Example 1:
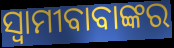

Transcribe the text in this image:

ସ୍ଵାମୀବାବାଙ୍କର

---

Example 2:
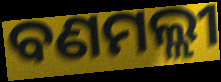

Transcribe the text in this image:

ବଣମଲ୍ଲୀ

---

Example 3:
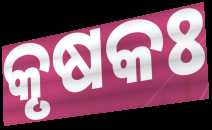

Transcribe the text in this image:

କୃଷକଃ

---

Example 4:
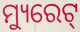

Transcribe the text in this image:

ମ୍ୟୁରେଟ୍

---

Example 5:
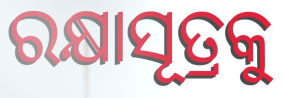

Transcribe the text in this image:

ରକ୍ଷାସୂତ୍ରକୁ